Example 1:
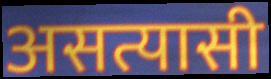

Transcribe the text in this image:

असत्यासी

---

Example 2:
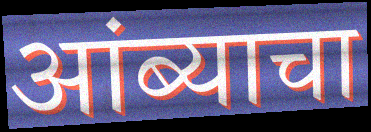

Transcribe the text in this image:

आंब्याचा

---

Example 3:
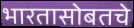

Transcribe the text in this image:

भारतासोबतचे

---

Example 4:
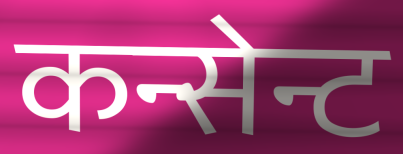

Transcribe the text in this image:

कन्सेन्ट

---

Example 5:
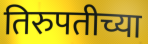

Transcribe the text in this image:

तिरुपतीच्या